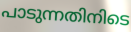
പാടുന്നതിനിടെ